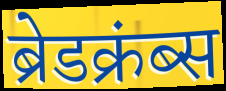
ब्रेडक्रंब्स